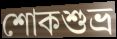
শোকশুভ্র